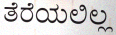
ತೆರೆಯಲಿಲ್ಲ